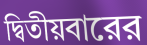
দ্বিতীয়বারের